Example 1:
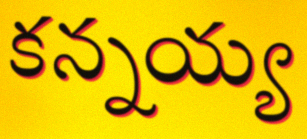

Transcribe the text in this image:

కన్నయ్య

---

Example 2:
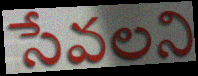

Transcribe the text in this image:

సేవలని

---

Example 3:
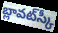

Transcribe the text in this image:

బ్లావట్‌స్కీ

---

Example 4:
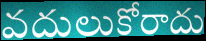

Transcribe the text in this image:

వదులుకోరాదు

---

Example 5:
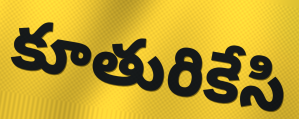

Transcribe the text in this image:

కూతురికేసి